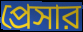
প্রেসার